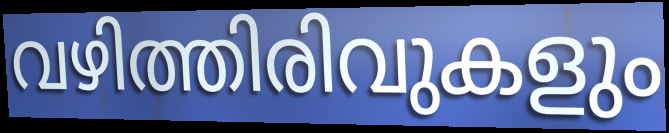
വഴിത്തിരിവുകളും